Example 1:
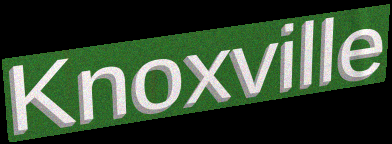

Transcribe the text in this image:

Knoxville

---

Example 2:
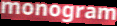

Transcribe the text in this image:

monogram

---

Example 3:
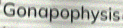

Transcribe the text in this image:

Gonapophysis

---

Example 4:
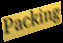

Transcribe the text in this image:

Packing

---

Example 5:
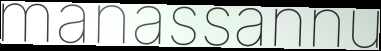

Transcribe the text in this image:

manassannu